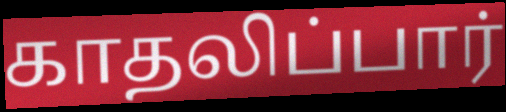
காதலிப்பார்